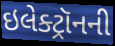
ઇલેક્ટ્રૉનની